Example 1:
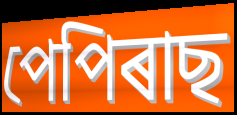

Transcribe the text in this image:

পেপিৰাছ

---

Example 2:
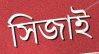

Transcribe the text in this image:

সিজাই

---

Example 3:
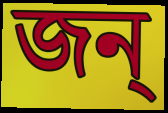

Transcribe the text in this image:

জন্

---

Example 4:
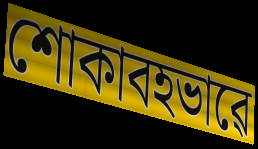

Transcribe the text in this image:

শোকাবহভাৱে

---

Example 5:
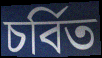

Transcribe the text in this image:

চৰ্বিত